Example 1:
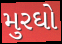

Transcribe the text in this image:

મુરઘો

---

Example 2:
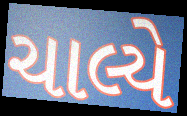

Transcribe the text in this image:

ચાલ્યે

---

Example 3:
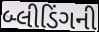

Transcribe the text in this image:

બ્લીડિંગની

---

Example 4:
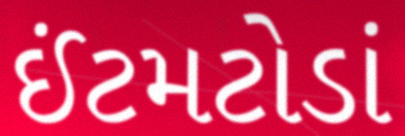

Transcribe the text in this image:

ઈંટમટોડાં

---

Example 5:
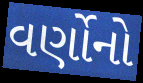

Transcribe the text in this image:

વર્ણોનો